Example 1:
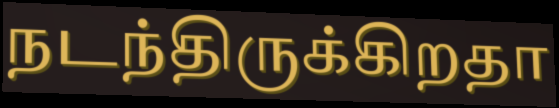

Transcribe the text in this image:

நடந்திருக்கிறதா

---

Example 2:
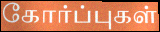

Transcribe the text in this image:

கோர்ப்புகள்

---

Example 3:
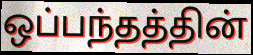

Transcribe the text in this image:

ஒப்பந்தத்தின்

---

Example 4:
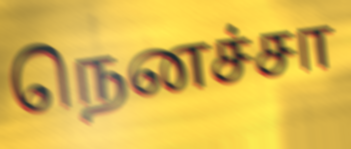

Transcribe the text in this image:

நெனச்சா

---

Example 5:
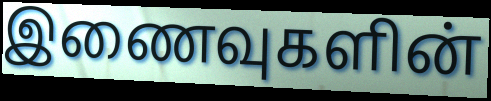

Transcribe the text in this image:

இணைவுகளின்